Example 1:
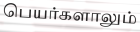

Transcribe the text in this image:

பெயர்களாலும்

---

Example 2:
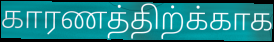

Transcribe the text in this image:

காரணத்திற்க்காக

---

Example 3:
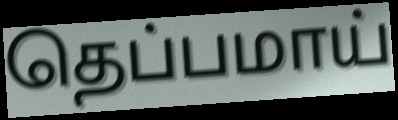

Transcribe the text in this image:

தெப்பமாய்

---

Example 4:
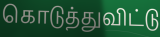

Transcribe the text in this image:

கொடுத்துவிட்டு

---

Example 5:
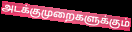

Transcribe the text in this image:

அடக்குமுறைகளுக்கும்